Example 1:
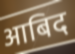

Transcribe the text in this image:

आबिद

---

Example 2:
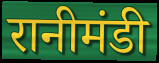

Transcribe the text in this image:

रानीमंडी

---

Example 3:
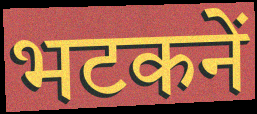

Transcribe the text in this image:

भटकनें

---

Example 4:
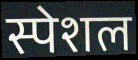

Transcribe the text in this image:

स्पेशल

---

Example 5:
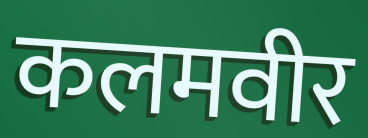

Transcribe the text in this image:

कलमवीर